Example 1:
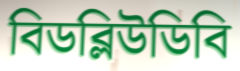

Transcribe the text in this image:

বিডব্লিউডিবি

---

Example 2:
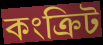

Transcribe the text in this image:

কংক্রিট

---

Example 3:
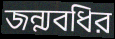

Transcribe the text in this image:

জন্মবধির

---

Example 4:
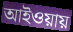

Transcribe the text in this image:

আইওয়ায়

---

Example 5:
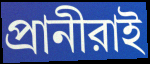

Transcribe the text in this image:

প্রানীরাই